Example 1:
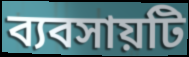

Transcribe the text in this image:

ব্যবসায়টি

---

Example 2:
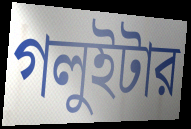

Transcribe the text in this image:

গলুইটার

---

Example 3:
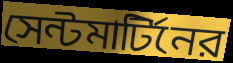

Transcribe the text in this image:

সেন্টমার্টিনের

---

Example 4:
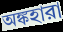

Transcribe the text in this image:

অঙ্কহারা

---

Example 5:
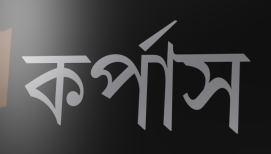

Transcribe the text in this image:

কর্পাস